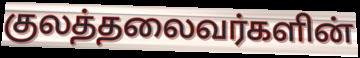
குலத்தலைவர்களின்